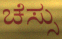
ಚೆಸ್ಸು